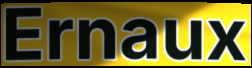
Ernaux